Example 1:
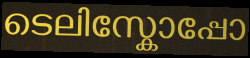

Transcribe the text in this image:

ടെലിസ്കോപ്പോ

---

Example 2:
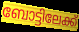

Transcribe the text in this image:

ബോട്ടിലേക്ക്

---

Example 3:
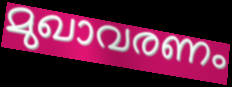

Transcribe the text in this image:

മുഖാവരണം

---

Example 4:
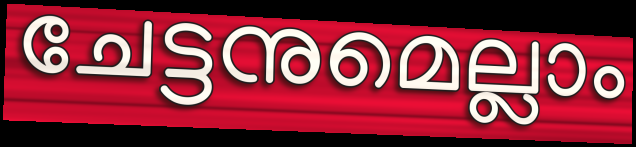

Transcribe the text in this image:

ചേട്ടനുമെല്ലാം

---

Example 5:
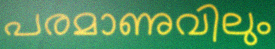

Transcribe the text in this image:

പരമാണുവിലും